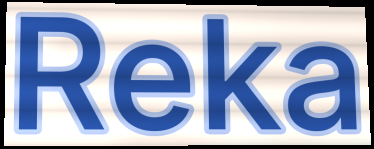
Reka